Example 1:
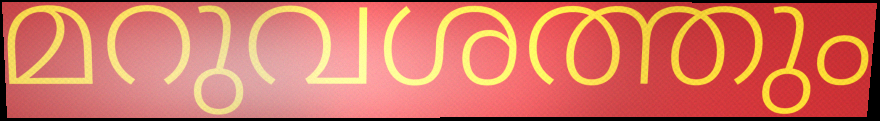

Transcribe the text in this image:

മറുവശത്തും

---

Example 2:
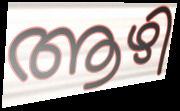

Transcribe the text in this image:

ആഴി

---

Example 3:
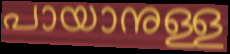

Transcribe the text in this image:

പായാനുള്ള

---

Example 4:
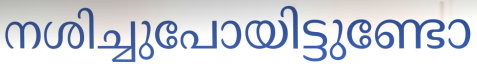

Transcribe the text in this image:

നശിച്ചുപോയിട്ടുണ്ടോ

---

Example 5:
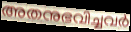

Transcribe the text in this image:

അതനുഭവിച്ചവർ